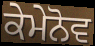
ਕੇਮੇਨੋਵ